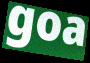
goa